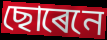
ছোৰেনে